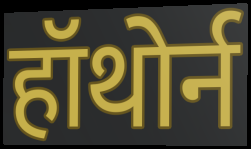
हॉथोर्न